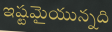
ఇష్టమైయున్నది